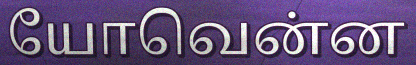
யோவென்ன